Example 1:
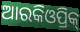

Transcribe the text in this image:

ଆରକିଓପ୍ରିକ୍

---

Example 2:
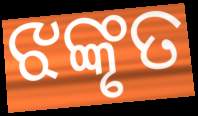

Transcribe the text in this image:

ଝଙ୍କୃତ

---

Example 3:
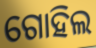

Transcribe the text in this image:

ଗୋହିଲ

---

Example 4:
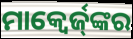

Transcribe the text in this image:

ମାକ୍ୱେର୍ଜ୍‌ଙ୍କର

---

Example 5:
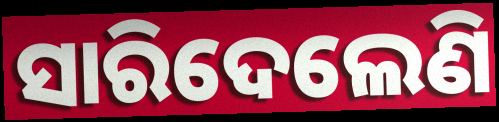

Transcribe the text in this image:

ସାରିଦେଲେଣି